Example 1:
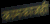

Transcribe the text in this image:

कामकाजही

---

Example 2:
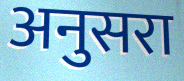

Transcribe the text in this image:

अनुसरा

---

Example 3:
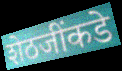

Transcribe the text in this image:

शेठजींकडे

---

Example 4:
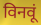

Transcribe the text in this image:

विनवूं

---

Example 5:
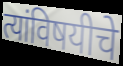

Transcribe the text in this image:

त्यांविषयीचे